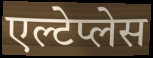
एल्टेप्लेस